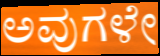
ಅವುಗಳೇ